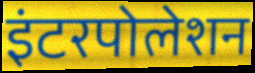
इंटरपोलेशन